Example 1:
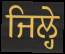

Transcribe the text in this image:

ਜਿਲ੍ਹੇ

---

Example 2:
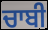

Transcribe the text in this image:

ਚਾਬੀ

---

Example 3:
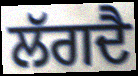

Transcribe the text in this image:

ਲੱਗਦੈ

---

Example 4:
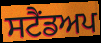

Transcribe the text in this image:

ਸਟੈਂਡਅਪ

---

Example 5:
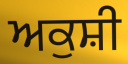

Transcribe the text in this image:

ਅਕੁਸ਼ੀ